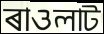
ৰাওলাট